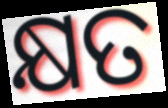
କ୍ଷତ